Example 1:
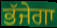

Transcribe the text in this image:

ਭੱਜੇਗਾ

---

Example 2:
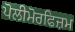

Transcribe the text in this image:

ਪੋਲੀਮੋਰਫਿਜ਼ਮ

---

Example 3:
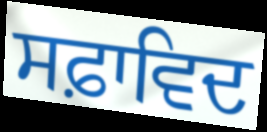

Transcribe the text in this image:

ਸਫ਼ਾਵਿਦ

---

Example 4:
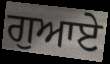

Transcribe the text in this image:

ਗੁਆਏ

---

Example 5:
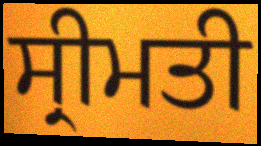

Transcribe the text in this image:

ਸ੍ਰੀਮਤੀ